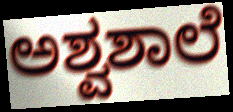
ಅಶ್ವಶಾಲೆ